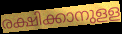
രക്ഷിക്കാനുളള